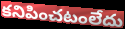
కనిపించటంలేదు